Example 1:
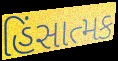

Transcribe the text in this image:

હિંસાત્મક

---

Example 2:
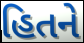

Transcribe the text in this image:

હિતને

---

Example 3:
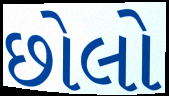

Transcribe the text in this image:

છોલો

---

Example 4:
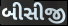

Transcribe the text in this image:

બીસીજી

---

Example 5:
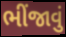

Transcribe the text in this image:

ભીંજાવું